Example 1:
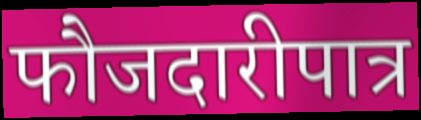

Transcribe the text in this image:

फौजदारीपात्र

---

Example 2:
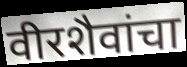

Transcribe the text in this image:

वीरशैवांचा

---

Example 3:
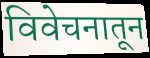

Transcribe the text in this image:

विवेचनातून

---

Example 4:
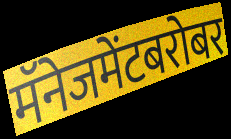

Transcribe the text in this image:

मॅनेजमेंटबरोबर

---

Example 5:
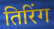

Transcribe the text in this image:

तिरिंग